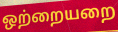
ஒற்றையறை